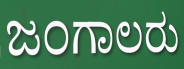
ಜಂಗಾಲರು